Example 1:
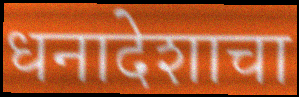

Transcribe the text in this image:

धनादेशाचा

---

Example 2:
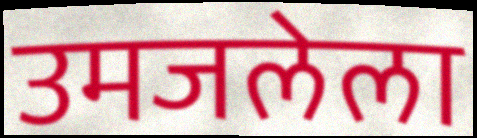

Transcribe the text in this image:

उमजलेला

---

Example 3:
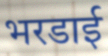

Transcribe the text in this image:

भरडाई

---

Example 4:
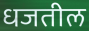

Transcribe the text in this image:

धजतील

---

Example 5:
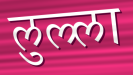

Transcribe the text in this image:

लुल्ला